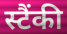
स्टैंकी